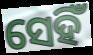
ସେହିଁ